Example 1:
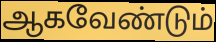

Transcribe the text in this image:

ஆகவேண்டும்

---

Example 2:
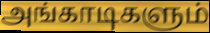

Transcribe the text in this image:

அங்காடிகளும்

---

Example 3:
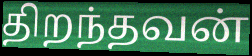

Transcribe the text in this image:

திறந்தவன்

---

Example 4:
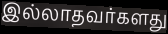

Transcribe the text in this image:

இல்லாதவர்களது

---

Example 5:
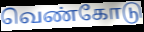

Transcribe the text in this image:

வெண்கோடு